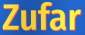
Zufar